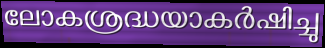
ലോകശ്രദ്ധയാകർഷിച്ചു